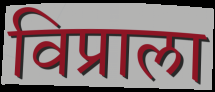
विप्राला